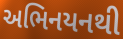
અભિનયનથી